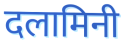
दलामिनी